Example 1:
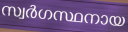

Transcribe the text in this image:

സ്വർഗസ്ഥനായ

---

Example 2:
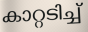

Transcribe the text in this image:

കാറ്റടിച്ച്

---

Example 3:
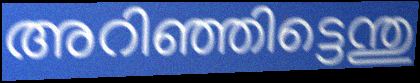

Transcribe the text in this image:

അറിഞ്ഞിട്ടെന്തു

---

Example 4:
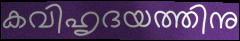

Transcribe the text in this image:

കവിഹൃദയത്തിനു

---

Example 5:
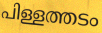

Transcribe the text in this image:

പിള്ളത്തടം